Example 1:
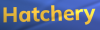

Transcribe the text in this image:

Hatchery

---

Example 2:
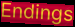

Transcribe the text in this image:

Endings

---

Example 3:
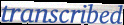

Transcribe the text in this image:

transcribed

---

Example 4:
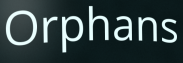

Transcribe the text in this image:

Orphans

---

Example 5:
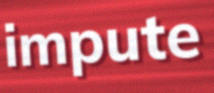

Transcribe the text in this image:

impute